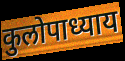
कुलोपाध्याय